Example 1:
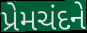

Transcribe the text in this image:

પ્રેમચંદને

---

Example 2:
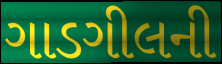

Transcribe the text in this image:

ગાડગીલની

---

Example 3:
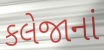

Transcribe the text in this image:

કલેજાનાં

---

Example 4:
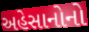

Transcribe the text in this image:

અહેસાનોનો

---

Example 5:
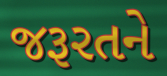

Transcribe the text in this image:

જરૂરતને